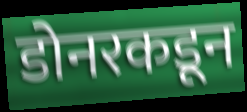
डोनरकडून